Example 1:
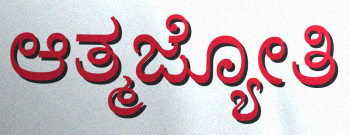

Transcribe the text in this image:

ಆತ್ಮಜ್ಯೋತಿ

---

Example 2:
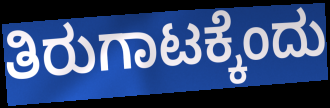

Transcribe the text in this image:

ತಿರುಗಾಟಕ್ಕೆಂದು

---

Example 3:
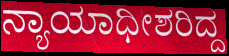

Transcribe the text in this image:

ನ್ಯಾಯಾಧೀಶರಿದ್ದ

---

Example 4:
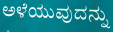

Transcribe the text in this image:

ಅಳೆಯುವುದನ್ನು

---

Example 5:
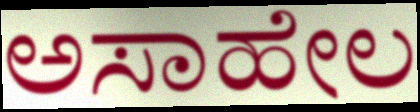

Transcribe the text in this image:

ಅಸಾಹೇಲ